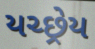
યચ્છ્રેય